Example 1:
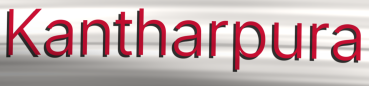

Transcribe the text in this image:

Kantharpura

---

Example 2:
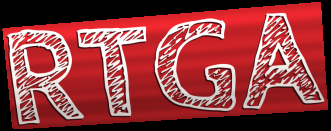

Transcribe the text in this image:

RTGA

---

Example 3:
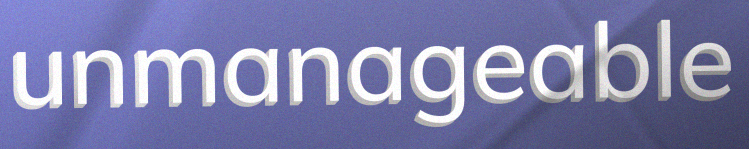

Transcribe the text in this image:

unmanageable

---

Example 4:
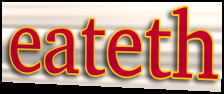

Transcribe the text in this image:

eateth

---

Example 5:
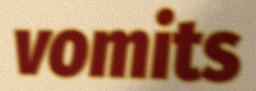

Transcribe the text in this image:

vomits